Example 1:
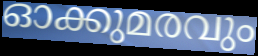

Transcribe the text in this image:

ഓക്കുമരവും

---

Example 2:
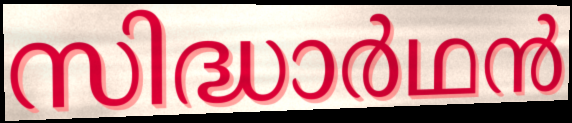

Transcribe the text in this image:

സിദ്ധാർഥൻ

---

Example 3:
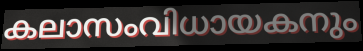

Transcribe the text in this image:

കലാസംവിധായകനും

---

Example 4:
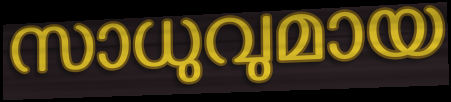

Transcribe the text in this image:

സാധുവുമായ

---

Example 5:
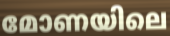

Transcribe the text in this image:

മോണയിലെ